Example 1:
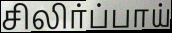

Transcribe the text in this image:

சிலிர்ப்பாய்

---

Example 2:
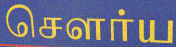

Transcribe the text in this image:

சௌர்ய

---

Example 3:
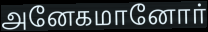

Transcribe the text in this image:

அனேகமானோர்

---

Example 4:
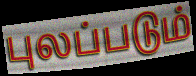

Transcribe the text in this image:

புலப்படும்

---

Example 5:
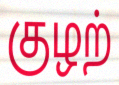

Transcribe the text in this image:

குழற்